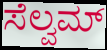
ಸೆಲ್ವಮ್